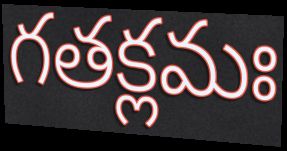
గతక్లమః